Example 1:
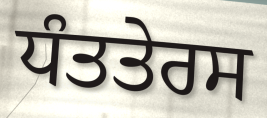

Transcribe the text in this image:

ਧੰਤਤੇਰਸ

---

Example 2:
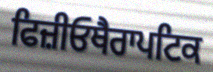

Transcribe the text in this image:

ਫਿਜ਼ੀਓਥੈਰਾਪਟਿਕ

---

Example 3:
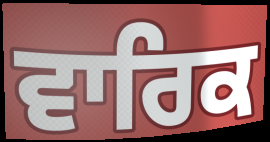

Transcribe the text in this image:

ਵਾਰਿਕ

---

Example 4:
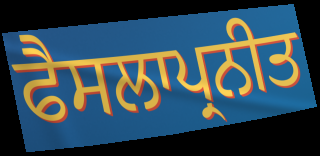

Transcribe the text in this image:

ਫੈਸਲਾਪ੍ਰਨੀਤ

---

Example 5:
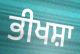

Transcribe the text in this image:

ਭੀਖਸ਼ਾ